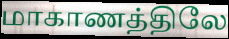
மாகாணத்திலே